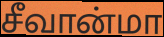
சீவான்மா